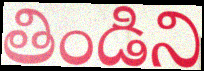
తిండిని